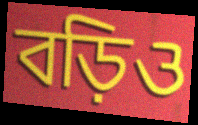
বড়িও